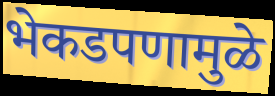
भेकडपणामुळे